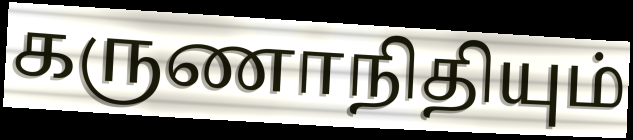
கருணாநிதியும்